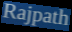
Rajpath